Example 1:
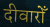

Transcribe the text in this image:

दीवारोँ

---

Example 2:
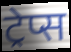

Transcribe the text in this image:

ट्रेप्स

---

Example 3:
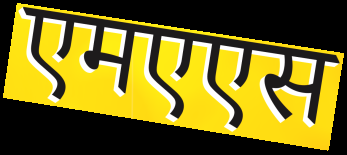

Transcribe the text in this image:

एमएएस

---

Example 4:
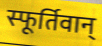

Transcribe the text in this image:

स्फूर्तिवान्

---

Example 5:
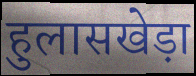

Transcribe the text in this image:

हुलासखेड़ा